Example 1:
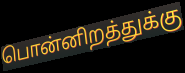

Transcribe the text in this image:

பொன்னிறத்துக்கு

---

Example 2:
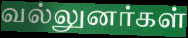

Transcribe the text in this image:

வல்லுனர்கள்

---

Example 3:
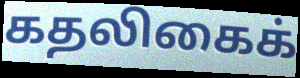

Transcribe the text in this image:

கதலிகைக்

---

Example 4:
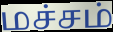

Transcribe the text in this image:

மச்சம்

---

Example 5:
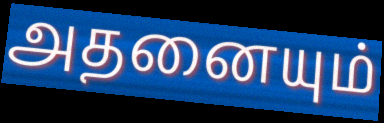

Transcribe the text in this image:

அதனையும்